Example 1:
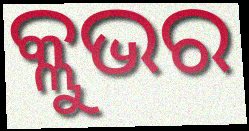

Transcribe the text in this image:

କ୍ଲୁଭର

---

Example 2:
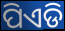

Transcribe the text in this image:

ପିଏଡି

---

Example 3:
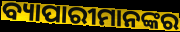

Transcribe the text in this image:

ବ୍ୟାପାରୀମାନଙ୍କର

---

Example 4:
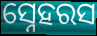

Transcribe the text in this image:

ସ୍ନେହରସ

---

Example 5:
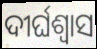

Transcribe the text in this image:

ଦୀର୍ଘଶ୍ଵାସ